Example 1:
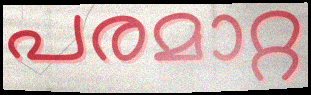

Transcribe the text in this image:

പരമാറ്റ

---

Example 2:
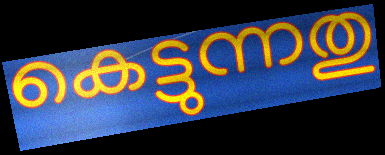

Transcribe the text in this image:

കെട്ടുന്നതു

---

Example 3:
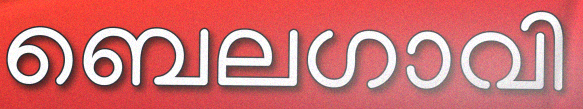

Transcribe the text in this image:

ബെലഗാവി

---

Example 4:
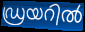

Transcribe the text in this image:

ഡ്രയറിൽ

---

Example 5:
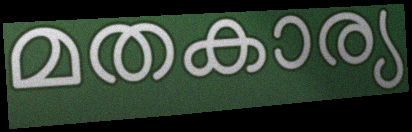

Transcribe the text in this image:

മതകാര്യ